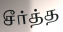
சீர்த்த